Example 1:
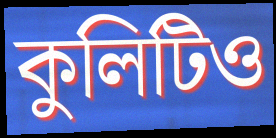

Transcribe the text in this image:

কুলিটিও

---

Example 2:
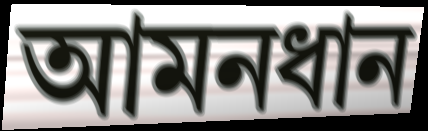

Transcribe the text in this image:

আমনধান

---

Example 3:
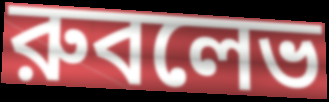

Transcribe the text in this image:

রুবলেভ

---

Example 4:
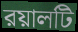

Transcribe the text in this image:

রয়ালটি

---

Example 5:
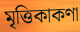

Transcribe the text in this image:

মৃত্তিকাকণা